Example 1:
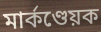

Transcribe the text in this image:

মাৰ্কণ্ডেয়ক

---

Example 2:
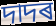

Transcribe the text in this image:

দাদৰ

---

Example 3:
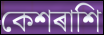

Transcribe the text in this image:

কেশৰাশি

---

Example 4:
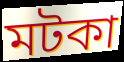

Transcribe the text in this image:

মটকা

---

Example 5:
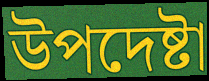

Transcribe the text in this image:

উপদেষ্টা